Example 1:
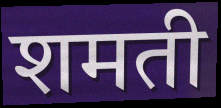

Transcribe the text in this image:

शमती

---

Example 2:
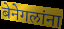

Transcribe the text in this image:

बेनेगलांना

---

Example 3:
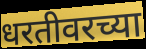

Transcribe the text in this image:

धरतीवरच्या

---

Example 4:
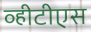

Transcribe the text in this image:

व्हीटीएस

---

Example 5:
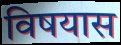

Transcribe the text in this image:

विषयास